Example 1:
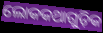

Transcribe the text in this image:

ଲୋକକଥାଗୁଡ଼ିକ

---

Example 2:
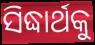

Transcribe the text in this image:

ସିଦ୍ଧାର୍ଥକୁ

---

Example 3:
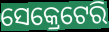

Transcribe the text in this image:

ସେକ୍ରେଟେରି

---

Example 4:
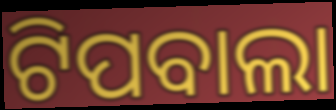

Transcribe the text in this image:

ଟିପବାଲା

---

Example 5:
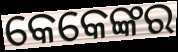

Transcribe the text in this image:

କେକେଙ୍କର